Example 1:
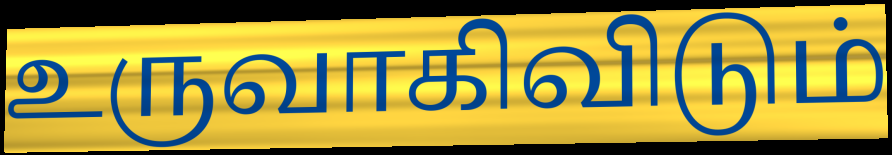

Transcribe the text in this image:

உருவாகிவிடும்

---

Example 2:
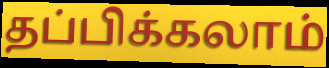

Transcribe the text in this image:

தப்பிக்கலாம்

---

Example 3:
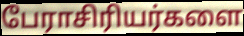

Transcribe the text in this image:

பேராசிரியர்களை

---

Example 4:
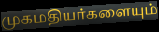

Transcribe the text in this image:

முகமதியர்களையும்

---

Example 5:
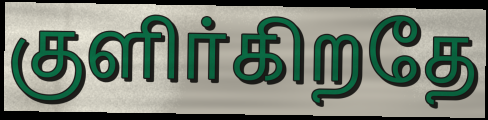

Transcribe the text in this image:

குளிர்கிறதே